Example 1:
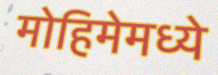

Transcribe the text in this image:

मोहिमेमध्ये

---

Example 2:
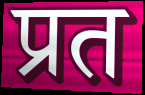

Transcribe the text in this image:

प्रत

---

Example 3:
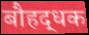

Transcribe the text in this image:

बौहद्धक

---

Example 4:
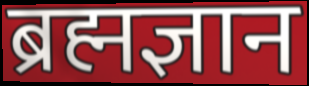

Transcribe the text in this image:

ब्रह्मज्ञान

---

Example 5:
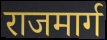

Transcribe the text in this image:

राजमार्ग